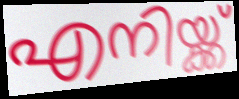
എനിയ്ക്ക്